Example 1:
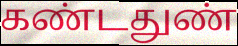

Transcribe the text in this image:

கண்டதுண்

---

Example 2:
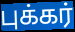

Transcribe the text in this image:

புக்கர்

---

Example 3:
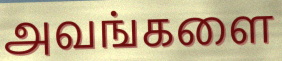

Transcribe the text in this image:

அவங்களை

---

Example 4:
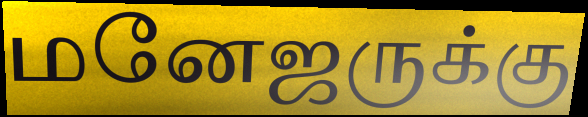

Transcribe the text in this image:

மனேஜருக்கு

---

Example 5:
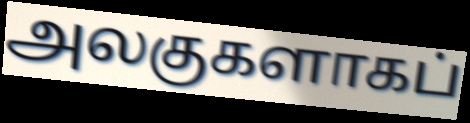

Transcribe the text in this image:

அலகுகளாகப்